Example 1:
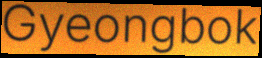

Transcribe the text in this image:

Gyeongbok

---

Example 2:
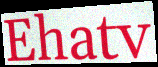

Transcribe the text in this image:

Ehatv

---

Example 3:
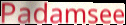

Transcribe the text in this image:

Padamsee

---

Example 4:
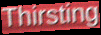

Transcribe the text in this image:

Thirsting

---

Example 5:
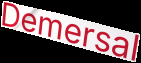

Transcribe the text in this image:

Demersal